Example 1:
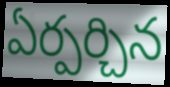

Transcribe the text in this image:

ఏర్పర్చిన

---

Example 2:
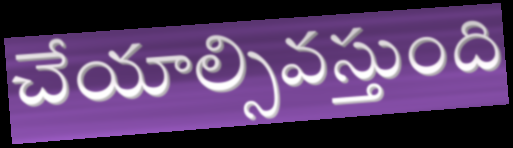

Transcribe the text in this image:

చేయాల్సివస్తుంది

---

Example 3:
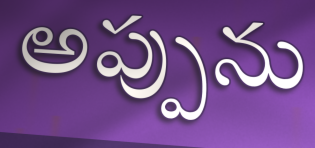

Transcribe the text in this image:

అప్పును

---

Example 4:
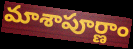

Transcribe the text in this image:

మాశాపూర్ణాం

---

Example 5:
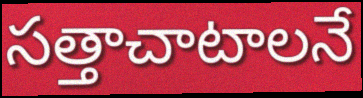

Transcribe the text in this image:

సత్తాచాటాలనే